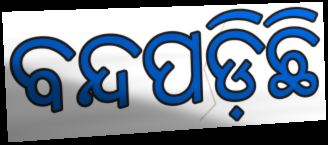
ବନ୍ଦପଡ଼ିଛି